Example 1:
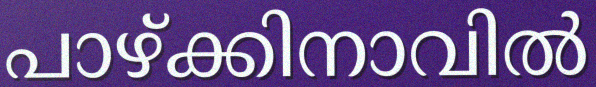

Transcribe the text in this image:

പാഴ്ക്കിനാവിൽ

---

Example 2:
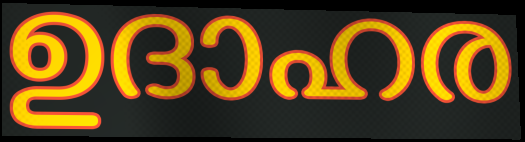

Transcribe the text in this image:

ഉദാഹര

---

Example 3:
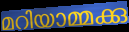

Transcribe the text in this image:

മറിയാമ്മക്കു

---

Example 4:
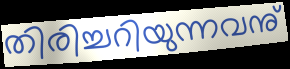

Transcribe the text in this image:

തിരിച്ചറിയുന്നവനു്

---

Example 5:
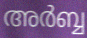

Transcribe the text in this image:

അർബ്ബ